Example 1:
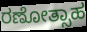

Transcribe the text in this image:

ರಣೋತ್ಸಾಹ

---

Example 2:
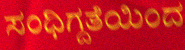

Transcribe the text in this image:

ಸಂಧಿಗ್ದತೆಯಿಂದ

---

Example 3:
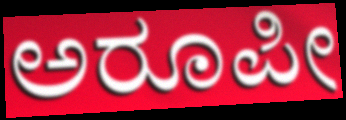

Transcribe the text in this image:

ಅರೂಪೀ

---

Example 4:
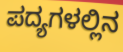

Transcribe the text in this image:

ಪದ್ಯಗಳಲ್ಲಿನ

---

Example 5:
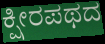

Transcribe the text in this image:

ಕ್ಷೀರಪಥದ